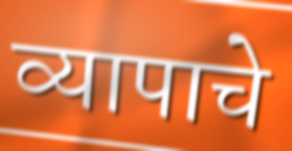
व्यापाचे